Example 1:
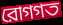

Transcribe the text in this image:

রোগগত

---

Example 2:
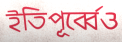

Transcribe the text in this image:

ইতিপূর্ব্বেও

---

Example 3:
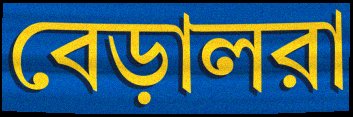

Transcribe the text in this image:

বেড়ালরা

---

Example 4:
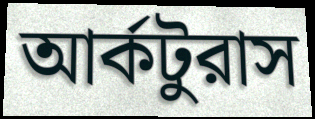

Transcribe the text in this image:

আর্কটুরাস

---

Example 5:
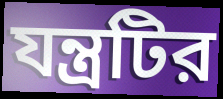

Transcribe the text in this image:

যন্ত্রটির